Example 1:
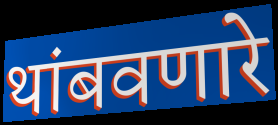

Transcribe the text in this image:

थांबवणारे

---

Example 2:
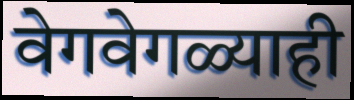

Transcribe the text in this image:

वेगवेगळ्याही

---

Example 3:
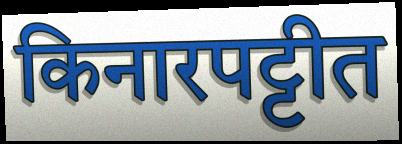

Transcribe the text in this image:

किनारपट्टीत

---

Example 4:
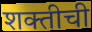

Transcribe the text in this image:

शक्तीची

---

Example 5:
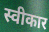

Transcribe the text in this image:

स्वीकार